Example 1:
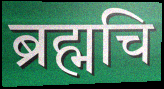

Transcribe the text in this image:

ब्रह्मचि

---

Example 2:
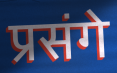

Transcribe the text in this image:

प्रसंगे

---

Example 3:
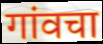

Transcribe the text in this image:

गांवचा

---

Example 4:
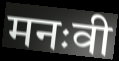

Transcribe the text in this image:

मनःवी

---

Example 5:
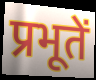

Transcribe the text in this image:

प्रभूतें